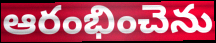
ఆరంభించెను